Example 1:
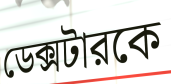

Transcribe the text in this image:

ডেক্সটারকে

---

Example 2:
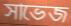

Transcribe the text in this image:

সাভেজ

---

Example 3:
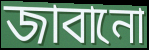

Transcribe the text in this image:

জাবানো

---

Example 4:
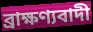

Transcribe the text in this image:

ব্রাক্ষণ্যবাদী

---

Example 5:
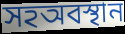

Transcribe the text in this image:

সহঅবস্থান